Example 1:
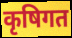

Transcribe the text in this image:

कृषिगत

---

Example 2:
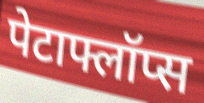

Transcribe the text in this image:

पेटाफ्लॉप्स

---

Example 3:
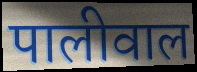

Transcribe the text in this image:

पालीवाल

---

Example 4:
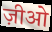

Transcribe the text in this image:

ज़ीओ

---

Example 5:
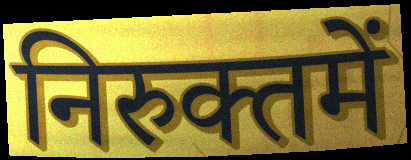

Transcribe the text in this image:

निरुक्तमें